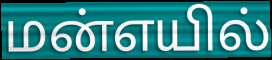
மன்எயில்